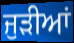
ਜੁੜੀਆਂ